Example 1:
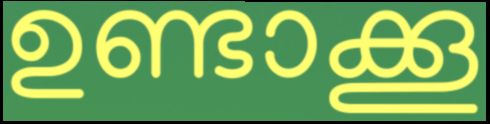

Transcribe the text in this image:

ഉണ്ടാക്കൂ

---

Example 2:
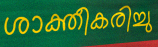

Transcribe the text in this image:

ശാക്തീകരിച്ചു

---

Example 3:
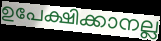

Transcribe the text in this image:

ഉപേക്ഷിക്കാനല്ല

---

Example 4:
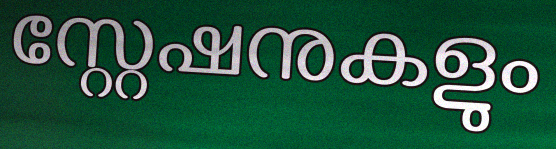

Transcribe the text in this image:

സ്റ്റേഷനുകളും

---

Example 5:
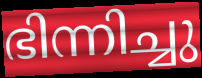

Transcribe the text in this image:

ഭിന്നിച്ചു